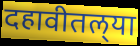
दहावीतल्या